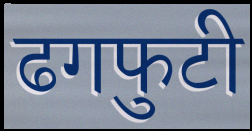
ढगफुटी